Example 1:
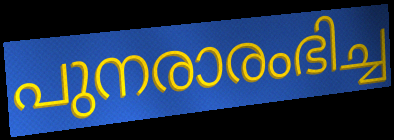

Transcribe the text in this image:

പുനരാരംഭിച്ച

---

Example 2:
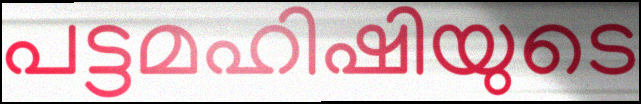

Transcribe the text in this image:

പട്ടമഹിഷിയുടെ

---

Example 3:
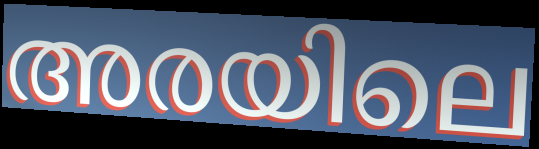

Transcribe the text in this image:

അരയിലെ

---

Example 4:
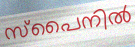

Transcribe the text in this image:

സ്പൈനിൽ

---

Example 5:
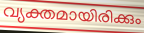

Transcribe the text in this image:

വ്യക്തമായിരിക്കും